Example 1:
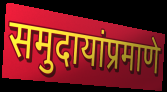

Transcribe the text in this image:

समुदायांप्रमाणे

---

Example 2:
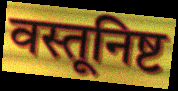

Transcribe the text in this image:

वस्तूनिष्ट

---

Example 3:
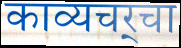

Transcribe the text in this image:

काव्यचर्चा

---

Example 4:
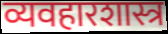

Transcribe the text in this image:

व्यवहारशास्त्र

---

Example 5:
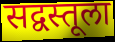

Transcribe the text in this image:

सद्वस्तूला